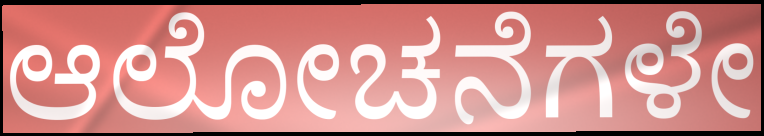
ಆಲೋಚನೆಗಳೇ